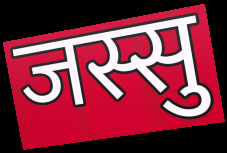
जस्सु